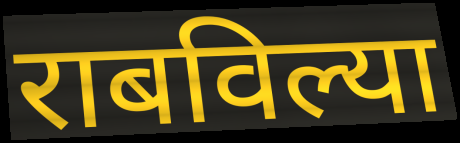
राबविल्या